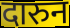
दारुन